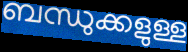
ബന്ധുക്കളുള്ള